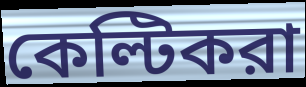
কেল্টিকরা